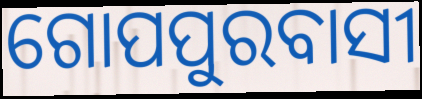
ଗୋପପୁରବାସୀ